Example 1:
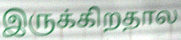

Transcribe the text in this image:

இருக்கிறதால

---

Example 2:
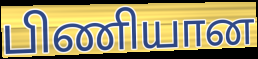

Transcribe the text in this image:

பிணியான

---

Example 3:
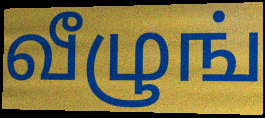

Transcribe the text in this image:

வீழுங்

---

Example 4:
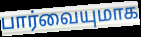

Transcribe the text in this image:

பார்வையுமாக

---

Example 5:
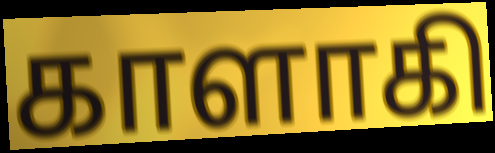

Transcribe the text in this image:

காளாகி